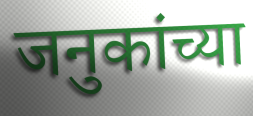
जनुकांच्या